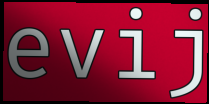
evij